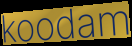
koodam